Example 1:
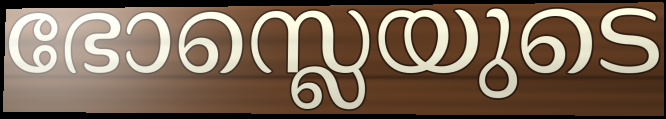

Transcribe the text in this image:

ഭോസ്ലെയുടെ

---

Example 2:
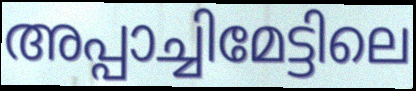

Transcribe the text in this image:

അപ്പാച്ചിമേട്ടിലെ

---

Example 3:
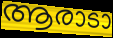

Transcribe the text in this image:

ആരാടാ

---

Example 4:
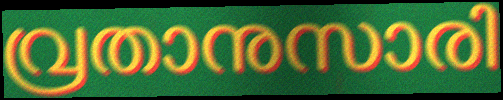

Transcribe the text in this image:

വ്രതാനുസാരി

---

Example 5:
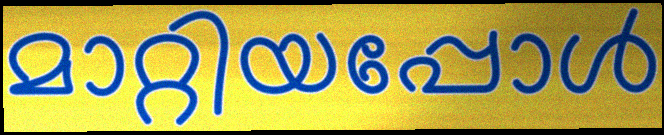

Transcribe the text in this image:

മാറ്റിയപ്പോൾ